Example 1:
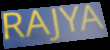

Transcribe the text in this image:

RAJYA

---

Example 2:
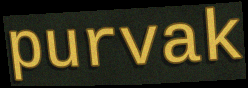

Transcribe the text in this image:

purvak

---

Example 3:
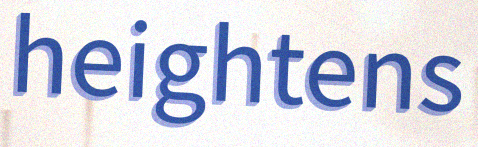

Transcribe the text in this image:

heightens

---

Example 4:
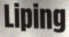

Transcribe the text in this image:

Liping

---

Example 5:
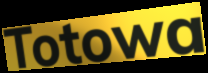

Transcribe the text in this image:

Totowa